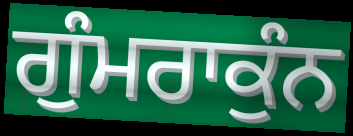
ਗੁੰਮਰਾਕੁੰਨ